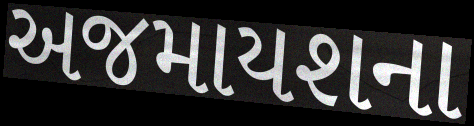
અજમાયશના